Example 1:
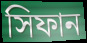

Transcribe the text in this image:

সিফান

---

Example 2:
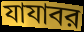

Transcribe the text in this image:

যাযাবর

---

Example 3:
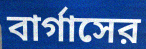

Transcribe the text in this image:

বার্গাসের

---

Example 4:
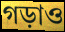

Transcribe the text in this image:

গড়াও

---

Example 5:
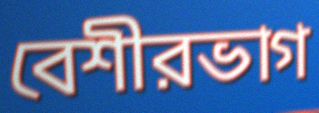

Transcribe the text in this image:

বেশীরভাগ